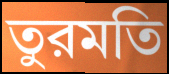
তুরমতি